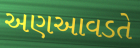
અણઆવડતે